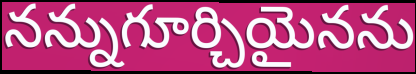
నన్నుగూర్చియైనను